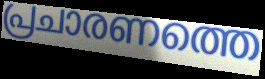
പ്രചാരണത്തെ